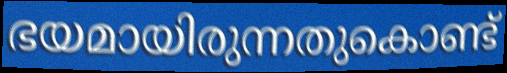
ഭയമായിരുന്നതുകൊണ്ട്